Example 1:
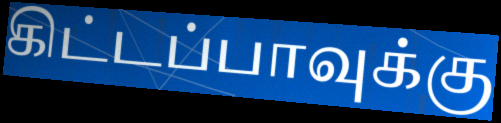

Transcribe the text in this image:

கிட்டப்பாவுக்கு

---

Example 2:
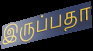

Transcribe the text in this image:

இருப்பதா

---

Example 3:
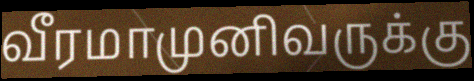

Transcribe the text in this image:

வீரமாமுனிவருக்கு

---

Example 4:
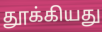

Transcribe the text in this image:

தூக்கியது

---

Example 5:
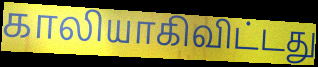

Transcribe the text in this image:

காலியாகிவிட்டது